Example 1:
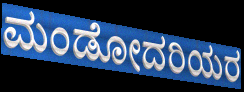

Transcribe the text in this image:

ಮಂಡೋದರಿಯರ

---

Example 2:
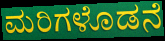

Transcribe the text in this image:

ಮರಿಗಳೊಡನೆ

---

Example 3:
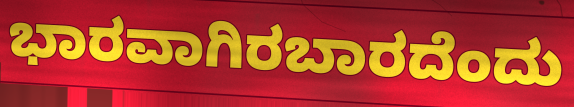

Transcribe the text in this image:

ಭಾರವಾಗಿರಬಾರದೆಂದು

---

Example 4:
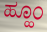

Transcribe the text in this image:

ಹ್ಹೂಂ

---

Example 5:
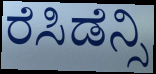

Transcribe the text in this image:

ರೆಸಿಡೆನ್ಸಿ